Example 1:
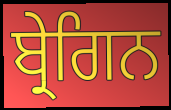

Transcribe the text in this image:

ਬ੍ਰੇਗਿਨ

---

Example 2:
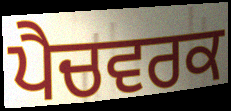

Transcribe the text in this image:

ਪੈਚਵਰਕ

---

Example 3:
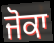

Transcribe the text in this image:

ਜੋਕਾ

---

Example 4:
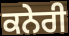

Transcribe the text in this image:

ਕਨੇਰੀ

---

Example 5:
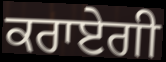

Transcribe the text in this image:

ਕਰਾਏਗੀ